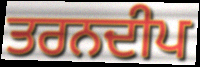
ਤਰਨਦੀਪ